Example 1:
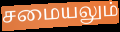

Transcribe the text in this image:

சமையலும்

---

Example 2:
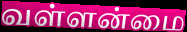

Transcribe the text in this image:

வள்ளன்மை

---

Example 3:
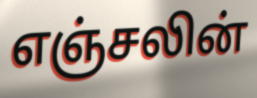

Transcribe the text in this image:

எஞ்சலின்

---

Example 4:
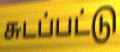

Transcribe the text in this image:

சுடப்பட்டு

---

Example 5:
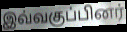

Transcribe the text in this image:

இவ்வகுப்பினர்